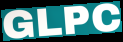
GLPC